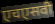
एचएसवी